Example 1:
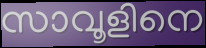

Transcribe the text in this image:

സാവൂളിനെ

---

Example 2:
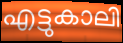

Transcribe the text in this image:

എട്ടുകാലി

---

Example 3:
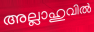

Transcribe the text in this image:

അല്ലാഹുവിൽ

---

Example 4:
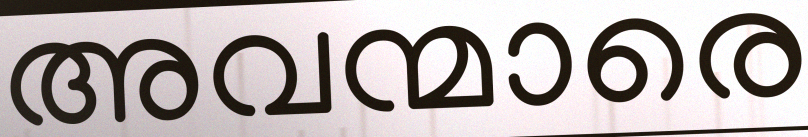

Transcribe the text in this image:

അവന്മാരെ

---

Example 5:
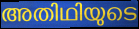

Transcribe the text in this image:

അതിഥിയുടെ